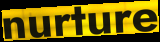
nurture